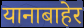
यानाबाहेर